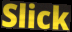
Slick